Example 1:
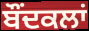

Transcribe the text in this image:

ਬੌਂਦਕਲਾਂ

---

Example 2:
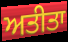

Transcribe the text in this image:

ਅਤੀਤਾ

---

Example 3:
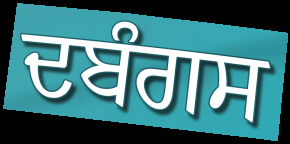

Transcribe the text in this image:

ਦਬੰਗਸ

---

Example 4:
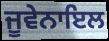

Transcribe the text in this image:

ਜੂਵੇਨਾਇਲ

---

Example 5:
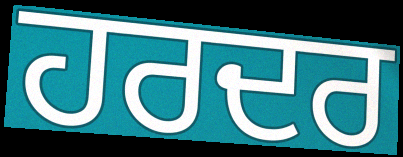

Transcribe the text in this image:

ਹਰਦਰ